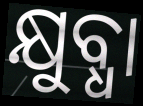
କ୍ଷୁବ୍ଧା